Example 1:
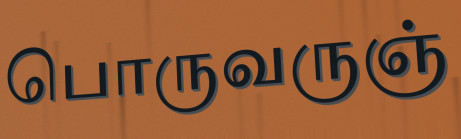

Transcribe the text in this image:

பொருவருஞ்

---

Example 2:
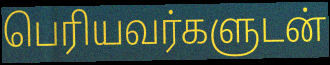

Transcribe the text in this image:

பெரியவர்களுடன்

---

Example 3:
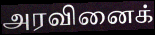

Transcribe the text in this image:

அரவினைக்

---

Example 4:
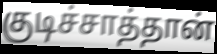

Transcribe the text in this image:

குடிச்சாத்தான்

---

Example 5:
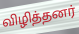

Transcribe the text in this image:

விழித்தனர்